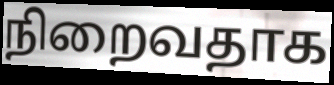
நிறைவதாக